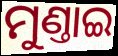
ମୁଣ୍ତାଇ